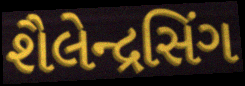
શૈલેન્દ્રસિંગ